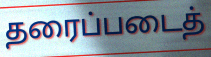
தரைப்படைத்